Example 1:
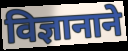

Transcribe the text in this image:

विज्ञानाने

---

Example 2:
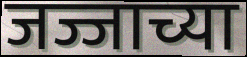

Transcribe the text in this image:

जज्जाच्या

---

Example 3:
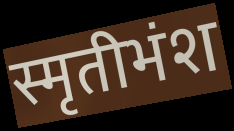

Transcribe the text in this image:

स्मृतीभंश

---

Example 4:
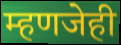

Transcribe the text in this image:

म्हणजेही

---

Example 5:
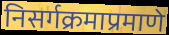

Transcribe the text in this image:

निसर्गक्रमाप्रमाणे